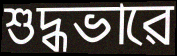
শুদ্ধভাৱে